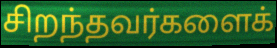
சிறந்தவர்களைக்